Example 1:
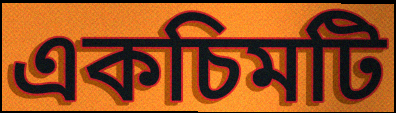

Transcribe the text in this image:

একচিমটি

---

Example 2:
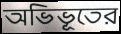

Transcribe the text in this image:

অভিভূতের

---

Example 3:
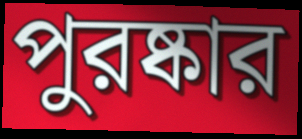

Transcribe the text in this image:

পুরষ্কার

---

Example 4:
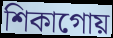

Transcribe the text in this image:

শিকাগোয়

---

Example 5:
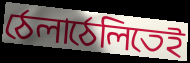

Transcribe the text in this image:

ঠেলাঠেলিতেই